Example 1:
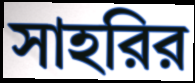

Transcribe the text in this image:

সাহরির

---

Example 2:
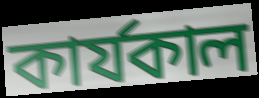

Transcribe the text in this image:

কার্যকাল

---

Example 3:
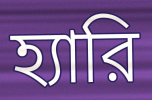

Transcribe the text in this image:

হ্যারি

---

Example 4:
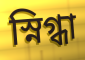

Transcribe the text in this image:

স্নিগ্ধা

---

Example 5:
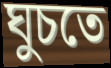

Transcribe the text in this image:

ঘুচতে